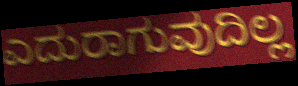
ಎದುರಾಗುವುದಿಲ್ಲ